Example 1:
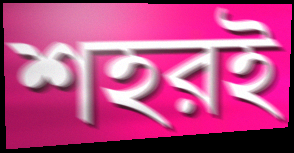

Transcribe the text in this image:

শহরই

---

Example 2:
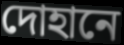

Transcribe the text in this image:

দোহানে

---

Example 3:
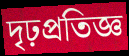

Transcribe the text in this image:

দৃঢ়প্রতিজ্ঞ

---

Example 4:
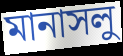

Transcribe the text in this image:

মানাসলু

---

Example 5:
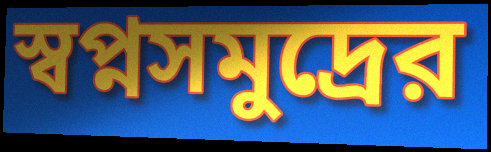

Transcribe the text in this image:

স্বপ্নসমুদ্রের